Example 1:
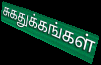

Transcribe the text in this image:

சுகதுக்கங்கள்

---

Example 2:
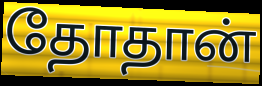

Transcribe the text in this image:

தோதான்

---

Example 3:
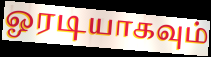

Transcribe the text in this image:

ஓரடியாகவும்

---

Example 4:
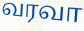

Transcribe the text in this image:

வரவா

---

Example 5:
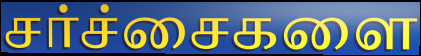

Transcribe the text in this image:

சர்ச்சைகளை